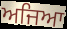
ਅਜਿਆ